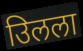
उिलला